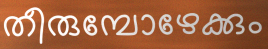
തീരുമ്പോഴേക്കും